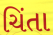
ચિંતા